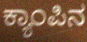
ಕ್ಯಾಂಪಿನ